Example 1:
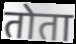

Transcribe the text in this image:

तोता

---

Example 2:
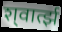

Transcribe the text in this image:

श्वार्त्झ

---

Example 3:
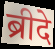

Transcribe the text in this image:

ब्रीदे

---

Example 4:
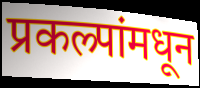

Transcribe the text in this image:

प्रकल्पांमधून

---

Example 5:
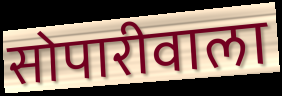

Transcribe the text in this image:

सोपारीवाला